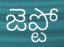
జెప్టో